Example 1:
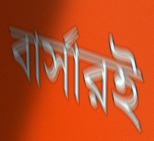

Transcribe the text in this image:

বার্সারই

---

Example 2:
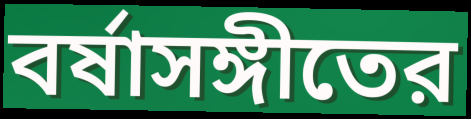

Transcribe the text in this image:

বর্ষাসঙ্গীতের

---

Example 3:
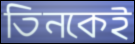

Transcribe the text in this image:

তিনকেই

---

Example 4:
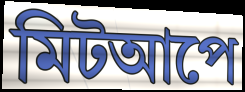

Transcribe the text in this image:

মিটআপে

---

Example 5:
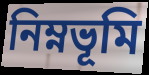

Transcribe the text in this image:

নিম্নভূমি